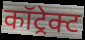
कॉट्रेक्ट